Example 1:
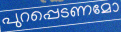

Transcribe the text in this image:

പുറപ്പെടണമോ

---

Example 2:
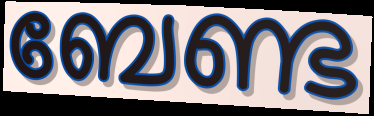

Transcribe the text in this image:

ബേണ്ട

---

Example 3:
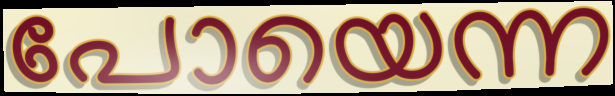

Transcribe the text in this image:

പോയെന്ന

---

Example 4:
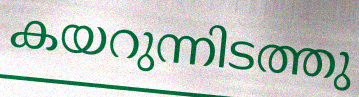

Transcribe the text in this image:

കയറുന്നിടത്തു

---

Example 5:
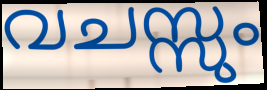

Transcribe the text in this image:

വചസ്സും